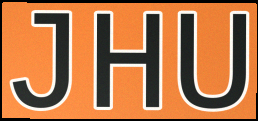
JHU